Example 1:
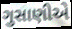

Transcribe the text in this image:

ગુસાણીએ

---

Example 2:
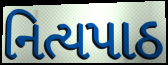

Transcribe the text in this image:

નિત્યપાઠ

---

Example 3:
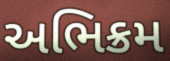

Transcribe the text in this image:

અભિક્રમ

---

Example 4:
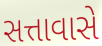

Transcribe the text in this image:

સત્તાવાસે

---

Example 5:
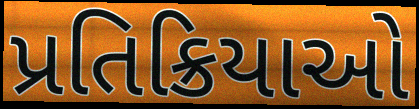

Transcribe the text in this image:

પ્રતિક્રિયાઓ